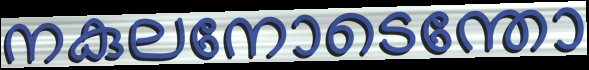
നകുലനോടെന്തോ